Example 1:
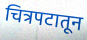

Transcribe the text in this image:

चित्रपटातून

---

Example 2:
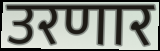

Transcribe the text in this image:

उरणार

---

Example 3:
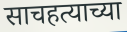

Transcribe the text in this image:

साचहत्याच्या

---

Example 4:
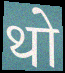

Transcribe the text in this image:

थो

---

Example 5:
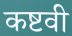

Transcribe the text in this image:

कष्टवी